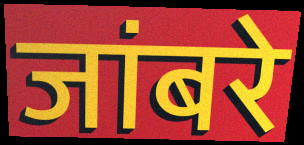
जांबरे